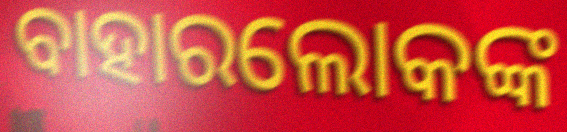
ବାହାରଲୋକଙ୍କ